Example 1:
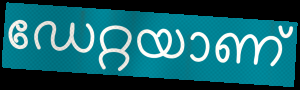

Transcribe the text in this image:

ഡേറ്റയാണ്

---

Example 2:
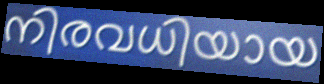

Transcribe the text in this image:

നിരവധിയായ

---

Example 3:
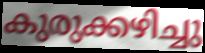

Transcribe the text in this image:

കുരുക്കഴിച്ചു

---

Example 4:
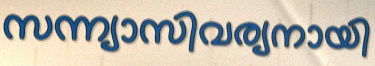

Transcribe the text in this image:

സന്ന്യാസിവര്യനായി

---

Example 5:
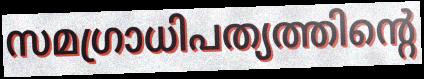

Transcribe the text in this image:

സമഗ്രാധിപത്യത്തിന്റെ